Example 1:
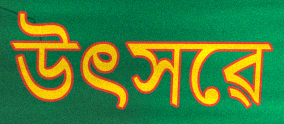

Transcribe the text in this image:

উৎসৱে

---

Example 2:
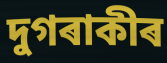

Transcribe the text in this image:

দুগৰাকীৰ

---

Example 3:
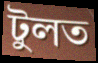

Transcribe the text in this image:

টুলত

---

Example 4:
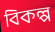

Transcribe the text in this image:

বিকল্প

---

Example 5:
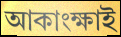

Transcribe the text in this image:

আকাংক্ষাই